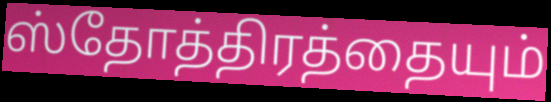
ஸ்தோத்திரத்தையும்